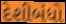
દેશીબંધો